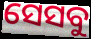
ସେସବୁ